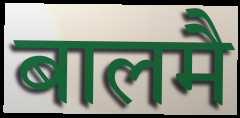
बालमै